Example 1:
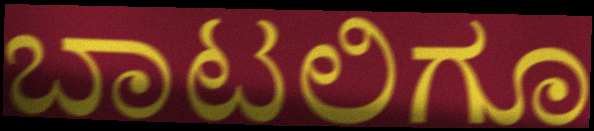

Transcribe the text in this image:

ಬಾಟಲಿಗೂ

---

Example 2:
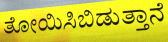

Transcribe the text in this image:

ತೋಯಿಸಿಬಿಡುತ್ತಾನೆ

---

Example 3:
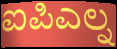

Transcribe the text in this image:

ಐಪಿಎಲ್ನ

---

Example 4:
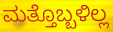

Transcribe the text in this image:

ಮತ್ತೊಬ್ಬಳಿಲ್ಲ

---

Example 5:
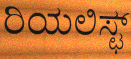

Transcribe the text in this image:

ರಿಯಲಿಸ್ಟ್